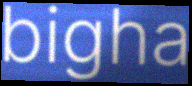
bigha